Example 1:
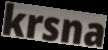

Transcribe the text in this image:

krsna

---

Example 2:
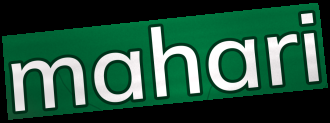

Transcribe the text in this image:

mahari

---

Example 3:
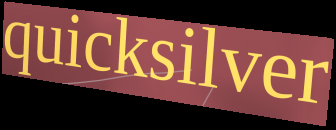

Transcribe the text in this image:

quicksilver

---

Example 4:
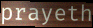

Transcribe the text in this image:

prayeth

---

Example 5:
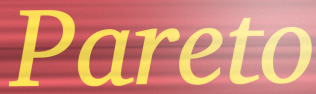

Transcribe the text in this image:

Pareto